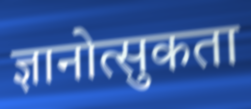
ज्ञानोत्सुकता